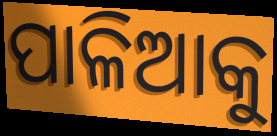
ପାଳିଆକୁ